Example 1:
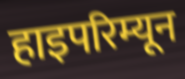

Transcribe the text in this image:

हाइपरिम्यून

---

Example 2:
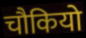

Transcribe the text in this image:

चौकियो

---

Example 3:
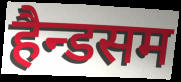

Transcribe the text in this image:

हैन्डसम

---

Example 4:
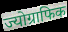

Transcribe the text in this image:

ज्योग्राफिक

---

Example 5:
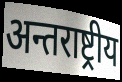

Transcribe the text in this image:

अन्तराष्ट्रीय